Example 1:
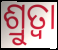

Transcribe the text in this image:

ଶ୍ରୁତ୍ଵା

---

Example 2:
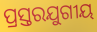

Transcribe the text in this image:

ପ୍ରସ୍ତରଯୁଗୀୟ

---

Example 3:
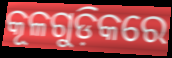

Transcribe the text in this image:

କୂଳଗୁଡ଼ିକରେ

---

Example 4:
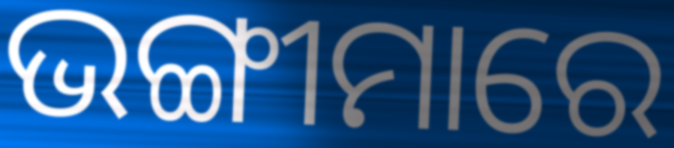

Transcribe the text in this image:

ଭଙ୍ଗୀମାରେ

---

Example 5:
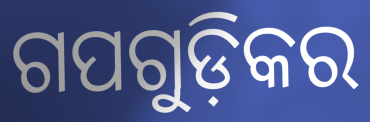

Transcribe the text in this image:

ଗପଗୁଡ଼ିକର